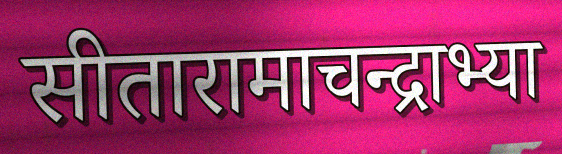
सीतारामाचन्द्राभ्या